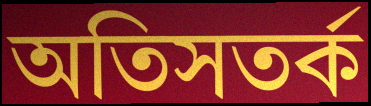
অতিসতর্ক